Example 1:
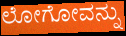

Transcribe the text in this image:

ಲೋಗೋವನ್ನು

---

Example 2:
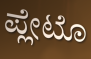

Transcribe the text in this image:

ಪ್ಲೇಟೊ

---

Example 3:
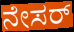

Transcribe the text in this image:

ನೇಸರ್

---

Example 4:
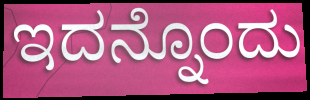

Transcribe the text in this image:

ಇದನ್ನೊಂದು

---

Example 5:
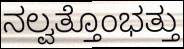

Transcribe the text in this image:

ನಲ್ವತ್ತೊಂಭತ್ತು